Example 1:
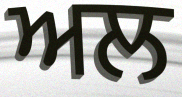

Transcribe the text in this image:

ਅਲ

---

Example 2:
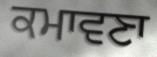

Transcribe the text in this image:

ਕਮਾਵਣਾ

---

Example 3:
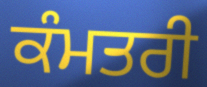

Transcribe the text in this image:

ਕੰਮਤਰੀ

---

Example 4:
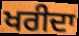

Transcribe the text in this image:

ਖਰੀਦਾ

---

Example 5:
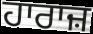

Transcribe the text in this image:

ਹਾਰਾਜ਼